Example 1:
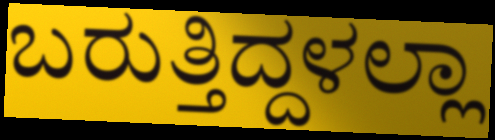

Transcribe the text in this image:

ಬರುತ್ತಿದ್ದಳಲ್ಲಾ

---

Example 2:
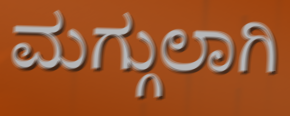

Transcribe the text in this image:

ಮಗ್ಗುಲಾಗಿ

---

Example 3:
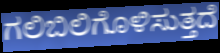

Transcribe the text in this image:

ಗಲಿಬಿಲಿಗೊಳಿಸುತ್ತದೆ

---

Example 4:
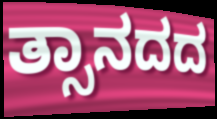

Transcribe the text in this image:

ತ್ಸಾನದದ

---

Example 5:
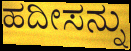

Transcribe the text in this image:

ಹದೀಸನ್ನು